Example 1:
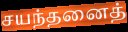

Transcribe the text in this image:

சயந்தனைத்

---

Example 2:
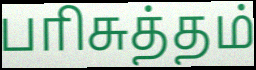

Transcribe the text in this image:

பரிசுத்தம்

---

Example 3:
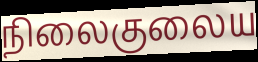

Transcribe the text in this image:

நிலைகுலைய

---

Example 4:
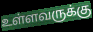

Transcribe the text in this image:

உள்ளவருக்கு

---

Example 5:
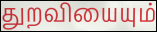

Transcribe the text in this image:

துறவியையும்